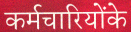
कर्मचारियोंके